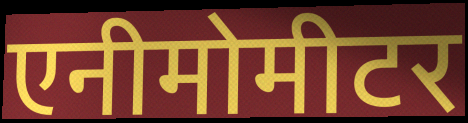
एनीमोमीटर